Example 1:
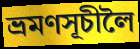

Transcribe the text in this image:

ভ্ৰমণসূচীলৈ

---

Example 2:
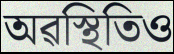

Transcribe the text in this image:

অৱস্থিতিও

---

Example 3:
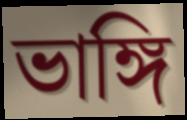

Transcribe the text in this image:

ভাঙ্গি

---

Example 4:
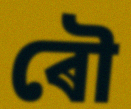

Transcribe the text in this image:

ৰৌ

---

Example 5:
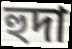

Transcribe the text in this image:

হুদা